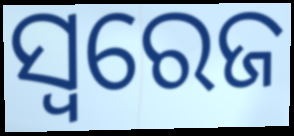
ସ୍ବରେଜ